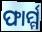
ଫାର୍ମ୍ମ